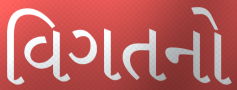
વિગતનો